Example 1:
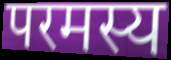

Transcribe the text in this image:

परमस्य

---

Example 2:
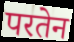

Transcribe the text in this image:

परतेन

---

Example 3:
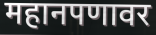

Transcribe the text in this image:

महानपणावर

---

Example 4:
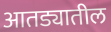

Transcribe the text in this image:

आतड्यातील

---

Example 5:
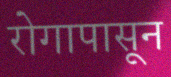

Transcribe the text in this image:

रोगापासून